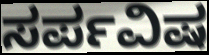
ಸರ್ಪವಿಷ